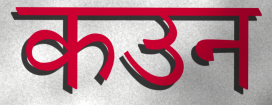
कउन